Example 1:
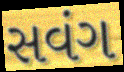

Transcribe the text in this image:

સવંગ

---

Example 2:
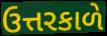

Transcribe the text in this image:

ઉત્તરકાળે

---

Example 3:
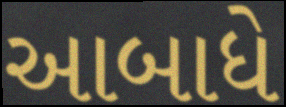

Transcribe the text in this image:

આબાધે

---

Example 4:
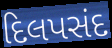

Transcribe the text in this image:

દિલપસંદ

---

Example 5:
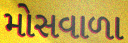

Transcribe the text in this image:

મોસવાળા